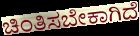
ಚಿಂತಿಸಬೇಕಾಗಿದೆ